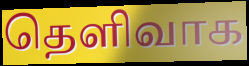
தெளிவாக